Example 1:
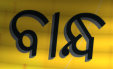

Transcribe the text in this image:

ବାନ୍ଧ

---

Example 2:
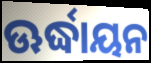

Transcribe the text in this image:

ଊର୍ଦ୍ଧାୟନ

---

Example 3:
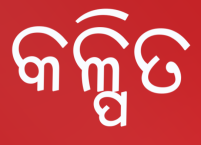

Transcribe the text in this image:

କଳ୍ପିତ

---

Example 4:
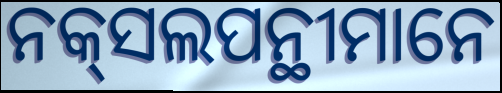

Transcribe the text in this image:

ନକ୍‌ସଲପନ୍ଥୀମାନେ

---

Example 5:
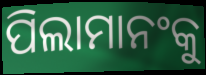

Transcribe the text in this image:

ପିଲାମାନଂକୁ